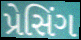
પ્રેસિંગ